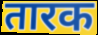
तारक